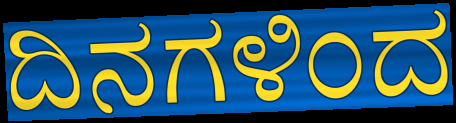
ದಿನಗಳಿಂದ